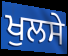
ਖੁਲਸੇ